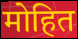
मोहित